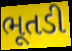
ભૂતડી